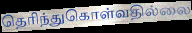
தெரிந்துகொள்வதில்லை